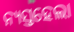
ନ୍ୟସ୍ତହେଲା